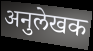
अनुलेखक